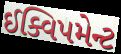
ઈક્વિપમેન્ટ